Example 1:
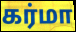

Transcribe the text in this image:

கர்மா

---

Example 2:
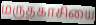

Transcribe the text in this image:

மருதகாசியை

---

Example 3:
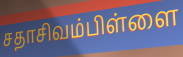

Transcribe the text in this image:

சதாசிவம்பிள்ளை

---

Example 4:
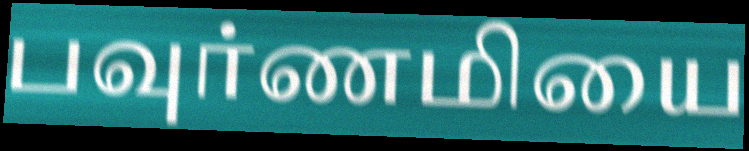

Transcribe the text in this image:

பவுர்ணமியை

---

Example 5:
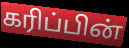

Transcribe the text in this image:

கரிப்பின்